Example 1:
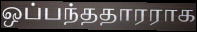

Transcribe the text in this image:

ஒப்பந்ததாரராக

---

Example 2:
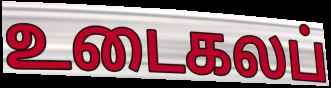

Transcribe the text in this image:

உடைகலப்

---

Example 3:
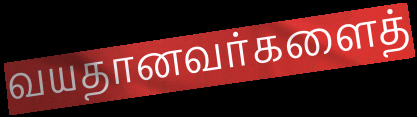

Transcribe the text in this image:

வயதானவர்களைத்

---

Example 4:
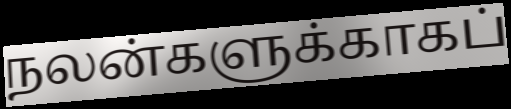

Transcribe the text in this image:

நலன்களுக்காகப்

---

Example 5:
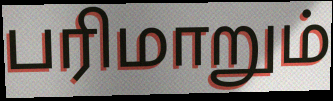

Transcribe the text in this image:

பரிமாறும்